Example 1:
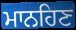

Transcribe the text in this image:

ਮਾਨਹਿਣ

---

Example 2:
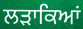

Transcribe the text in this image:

ਲੜਾਕਿਆਂ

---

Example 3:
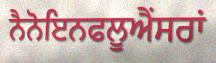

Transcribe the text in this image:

ਨੈਨੋਇਨਫਲੂਐਂਸਰਾਂ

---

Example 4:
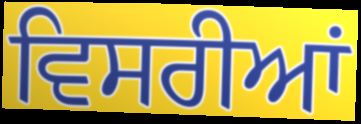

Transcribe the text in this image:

ਵਿਸਰੀਆਂ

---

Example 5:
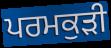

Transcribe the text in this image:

ਪਰਮਕੁੜੀ